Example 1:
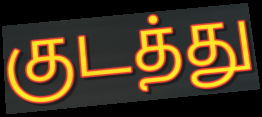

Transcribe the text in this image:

குடத்து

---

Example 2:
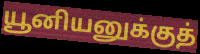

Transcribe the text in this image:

யூனியனுக்குத்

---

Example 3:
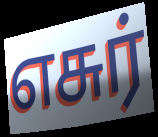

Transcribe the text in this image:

எசுர்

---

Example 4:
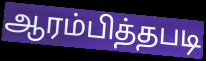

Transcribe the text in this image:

ஆரம்பித்தபடி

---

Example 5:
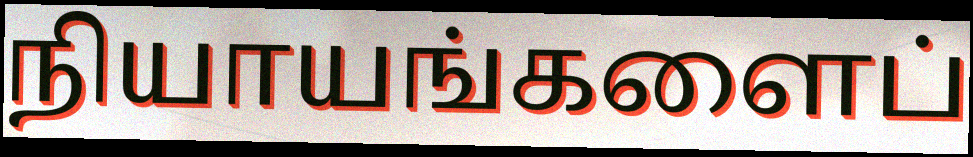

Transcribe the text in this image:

நியாயங்களைப்